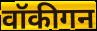
वॉकीगन